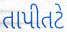
તાપીતટે